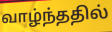
வாழ்ந்ததில்